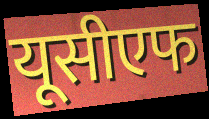
यूसीएफ